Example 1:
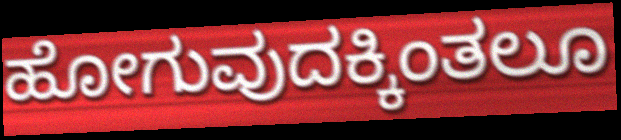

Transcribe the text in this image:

ಹೋಗುವುದಕ್ಕಿಂತಲೂ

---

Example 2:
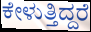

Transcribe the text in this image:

ಕೇಳುತ್ತಿದ್ದರೆ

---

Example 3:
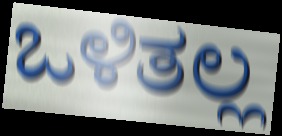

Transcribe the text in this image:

ಒಳಿತಲ್ಲ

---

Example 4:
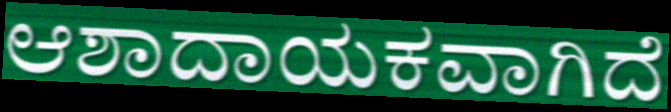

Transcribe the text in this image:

ಆಶಾದಾಯಕವಾಗಿದೆ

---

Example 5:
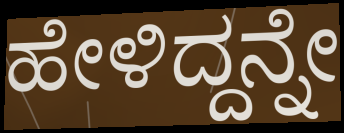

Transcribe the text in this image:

ಹೇಳಿದ್ದನ್ನೇ